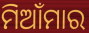
ମିଆଁମାର